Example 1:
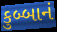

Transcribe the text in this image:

કુબ્બાનં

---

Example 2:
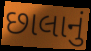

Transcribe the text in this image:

છાલાનું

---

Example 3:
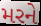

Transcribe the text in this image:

મરને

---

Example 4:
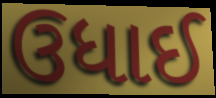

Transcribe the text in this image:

ઉધાઈ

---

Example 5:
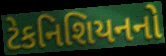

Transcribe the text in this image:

ટેકનિશિયનનો